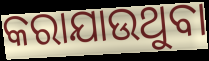
କରାଯାଉଥୁବା